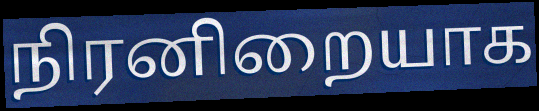
நிரனிறையாக